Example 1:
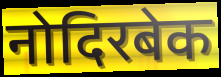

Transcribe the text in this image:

नोदिरबेक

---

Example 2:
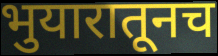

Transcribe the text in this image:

भुयारातूनच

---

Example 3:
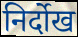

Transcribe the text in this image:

निर्दोख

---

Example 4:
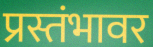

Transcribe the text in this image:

प्रस्तंभावर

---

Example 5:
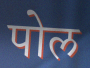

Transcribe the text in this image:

पोल